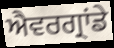
ਐਵਰਗ੍ਰਾਂਡੇ